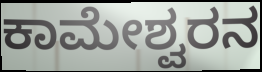
ಕಾಮೇಶ್ವರನ